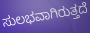
ಸುಲಭವಾಗಿರುತ್ತದೆ